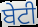
ਬੇਟੀ